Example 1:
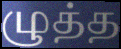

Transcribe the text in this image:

ழுத்த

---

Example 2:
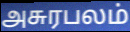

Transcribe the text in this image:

அசுரபலம்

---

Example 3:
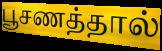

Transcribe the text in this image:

பூசணத்தால்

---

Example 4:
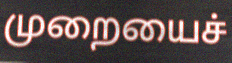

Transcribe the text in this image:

முறையைச்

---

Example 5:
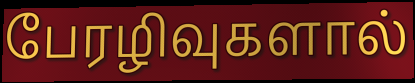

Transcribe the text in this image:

பேரழிவுகளால்